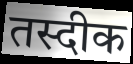
तस्‍दीक